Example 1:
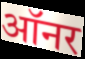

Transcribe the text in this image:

ऑनर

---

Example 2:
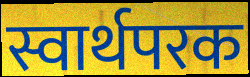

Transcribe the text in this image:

स्वार्थपरक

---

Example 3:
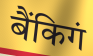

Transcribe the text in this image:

बैंकिगं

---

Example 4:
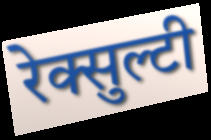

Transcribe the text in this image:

रेक्सुल्टी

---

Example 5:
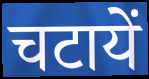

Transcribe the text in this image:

चटायें